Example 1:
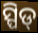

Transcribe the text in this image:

ସ୍ପିଡ୍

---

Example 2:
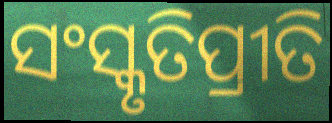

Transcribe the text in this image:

ସଂସ୍କୃତିପ୍ରୀତି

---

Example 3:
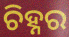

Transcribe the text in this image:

ଚିହ୍ନର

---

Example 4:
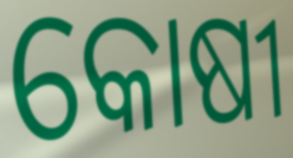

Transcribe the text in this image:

କୋଷୀ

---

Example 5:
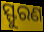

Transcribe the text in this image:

ସ୍ଫୁରଣ